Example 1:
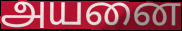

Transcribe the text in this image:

அயனை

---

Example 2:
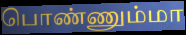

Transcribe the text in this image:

பொண்ணும்மா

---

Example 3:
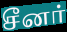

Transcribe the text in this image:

சீனர்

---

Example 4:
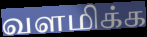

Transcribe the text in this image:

வளமிக்க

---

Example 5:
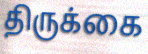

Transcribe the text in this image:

திருக்கை